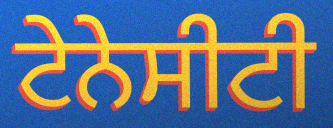
ਟੇਨੇਸੀਟੀ